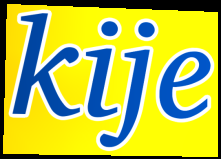
kije